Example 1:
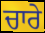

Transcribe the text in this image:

ਚਾਰੇ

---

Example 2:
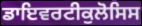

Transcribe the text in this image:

ਡਾਇਵਰਟੀਕੁਲੋਸਿਸ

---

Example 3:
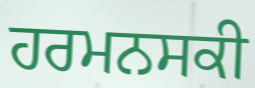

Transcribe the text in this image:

ਹਰਮਨਸਕੀ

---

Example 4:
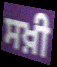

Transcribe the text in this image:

ਸਖ਼ੀ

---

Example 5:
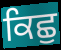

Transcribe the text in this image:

ਕਿਛੁ